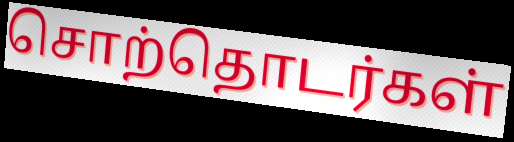
சொற்தொடர்கள்